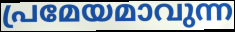
പ്രമേയമാവുന്ന